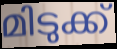
മിടുക്ക്